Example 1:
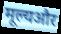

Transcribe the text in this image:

मूल्यऔर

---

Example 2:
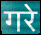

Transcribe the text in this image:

गरे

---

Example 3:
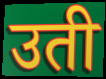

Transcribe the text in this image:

उती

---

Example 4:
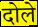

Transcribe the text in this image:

दोले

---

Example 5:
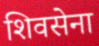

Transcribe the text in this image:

शिवसेना